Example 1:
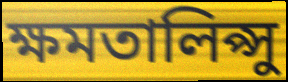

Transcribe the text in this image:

ক্ষমতালিপ্সু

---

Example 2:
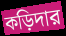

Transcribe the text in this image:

কড়িদার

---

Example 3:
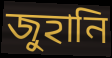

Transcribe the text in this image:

জুহানি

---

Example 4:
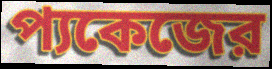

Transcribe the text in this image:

প্যকেজের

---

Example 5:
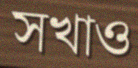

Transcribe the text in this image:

সখাও